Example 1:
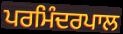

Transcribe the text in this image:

ਪਰਮਿੰਦਰਪਾਲ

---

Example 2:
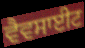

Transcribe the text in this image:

ਵੈਵਸਾਈਟ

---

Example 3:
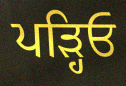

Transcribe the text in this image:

ਪੜ੍ਹਿਓ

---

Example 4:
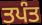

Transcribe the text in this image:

ਤਪੰਤ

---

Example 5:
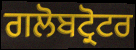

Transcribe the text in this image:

ਗਲੋਬਟ੍ਰੋਟਰ